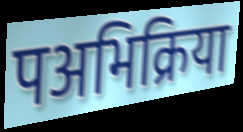
पअभिक्रिया